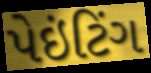
પેઇંટિંગ